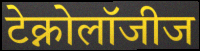
टेक्नोलॉजीज